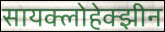
सायक्लोहेक्झीन